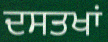
ਦਸਤਖਾਂ